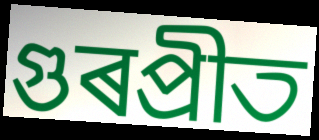
গুৰপ্ৰীত